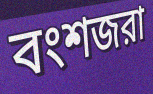
বংশজরা